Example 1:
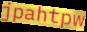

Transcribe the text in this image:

jpahtpw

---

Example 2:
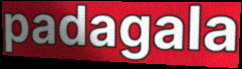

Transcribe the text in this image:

padagala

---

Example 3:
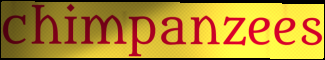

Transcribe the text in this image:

chimpanzees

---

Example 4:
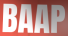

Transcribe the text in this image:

BAAP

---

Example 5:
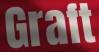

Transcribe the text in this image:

Graft